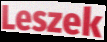
Leszek